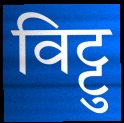
विट्टु